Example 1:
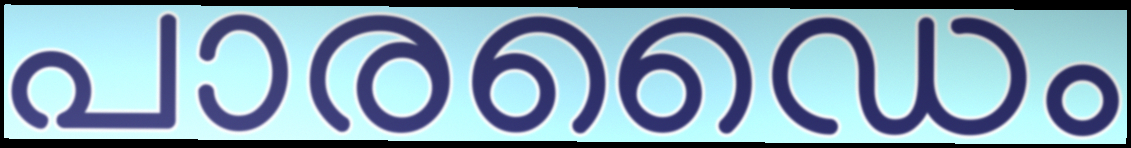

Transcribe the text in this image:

പാരഡൈം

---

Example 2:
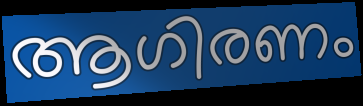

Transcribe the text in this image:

ആഗിരണം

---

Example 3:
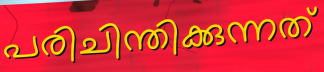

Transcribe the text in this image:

പരിചിന്തിക്കുന്നത്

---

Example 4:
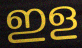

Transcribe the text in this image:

ഇള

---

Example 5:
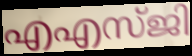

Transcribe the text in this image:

എഎസ്ജി